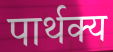
पार्थक्य